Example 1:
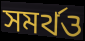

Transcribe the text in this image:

সমর্থও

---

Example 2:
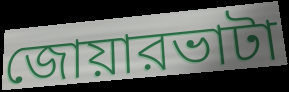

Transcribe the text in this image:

জোয়ারভাটা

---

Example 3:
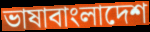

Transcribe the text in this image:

ভাষাবাংলাদেশ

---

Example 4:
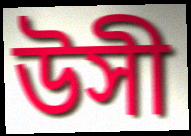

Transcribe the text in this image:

উসী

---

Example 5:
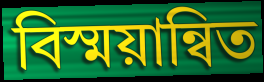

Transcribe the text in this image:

বিস্ময়ান্বিত